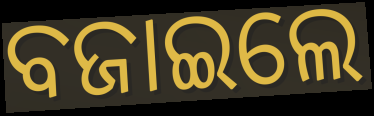
ବଜାଇଲେ